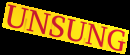
UNSUNG